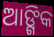
ଆଙ୍ଗିକ